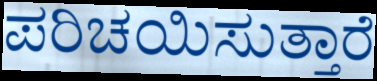
ಪರಿಚಯಿಸುತ್ತಾರೆ